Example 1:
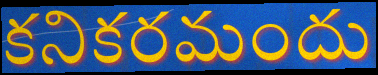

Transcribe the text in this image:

కనికరమందు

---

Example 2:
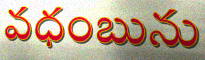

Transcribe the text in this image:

వధంబును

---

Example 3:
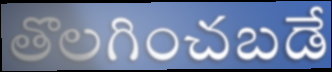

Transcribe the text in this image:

తొలగించబడే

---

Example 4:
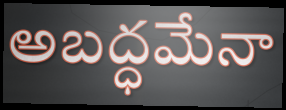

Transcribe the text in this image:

అబద్ధమేనా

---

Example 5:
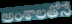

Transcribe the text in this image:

అంశాలతోనే